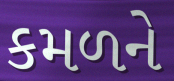
કમળને